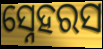
ସ୍ନେହରସ